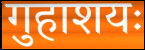
गुहाशयः